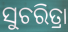
ସୁଚରିତ୍ରା